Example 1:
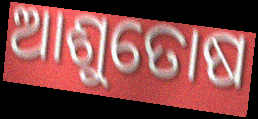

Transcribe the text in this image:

ଆଶୁତୋଷ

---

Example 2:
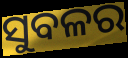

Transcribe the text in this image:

ସୁବଳର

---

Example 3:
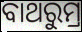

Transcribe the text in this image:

ବାଥରୁମ୍ର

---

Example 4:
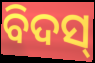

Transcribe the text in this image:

ବିଦସ୍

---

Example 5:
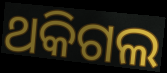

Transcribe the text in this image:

ଥକିଗଲ